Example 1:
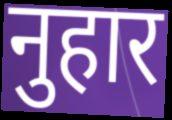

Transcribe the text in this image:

नुहार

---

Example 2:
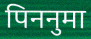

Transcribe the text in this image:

पिननुमा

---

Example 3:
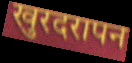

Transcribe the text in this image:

खुरदरापन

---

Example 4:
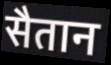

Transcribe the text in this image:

सैतान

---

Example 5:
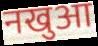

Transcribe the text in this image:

नखुआ